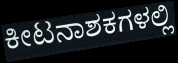
ಕೀಟನಾಶಕಗಳಲ್ಲಿ